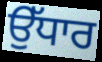
ਉੱਧਾਰ